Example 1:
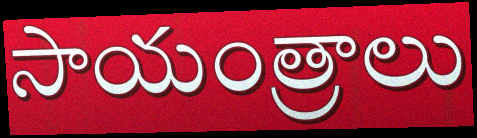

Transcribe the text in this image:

సాయంత్రాలు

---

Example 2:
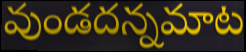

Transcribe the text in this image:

వుండదన్నమాట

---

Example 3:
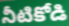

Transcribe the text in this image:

నీటికోడి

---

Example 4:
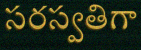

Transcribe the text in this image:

సరస్వతిగా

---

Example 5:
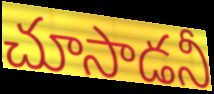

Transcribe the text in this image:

చూసాడనీ